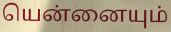
யென்னையும்